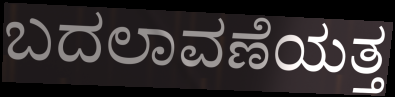
ಬದಲಾವಣೆಯತ್ತ